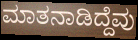
ಮಾತನಾಡಿದ್ದೆವು